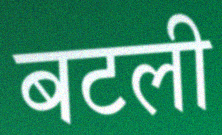
बटली